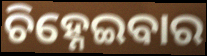
ଚିହ୍ନେଇବାର